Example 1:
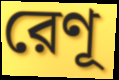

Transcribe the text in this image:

রেণূ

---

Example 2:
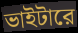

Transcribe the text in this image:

ভাইটারে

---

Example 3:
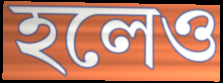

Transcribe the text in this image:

হলেও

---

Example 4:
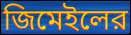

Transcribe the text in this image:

জিমেইলের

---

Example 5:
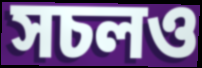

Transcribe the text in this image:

সচলও